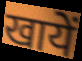
खायें